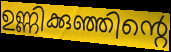
ഉണ്ണിക്കുഞ്ഞിന്റെ